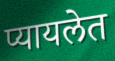
प्यायलेत